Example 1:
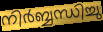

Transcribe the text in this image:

നിർബ്ബന്ധിച്ചു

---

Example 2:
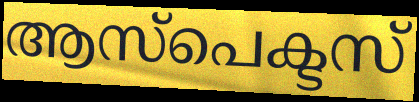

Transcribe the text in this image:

ആസ്പെക്ടസ്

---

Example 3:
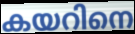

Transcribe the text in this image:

കയറിനെ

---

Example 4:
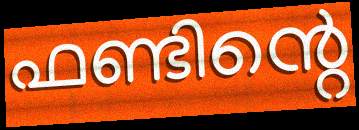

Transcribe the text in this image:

ഫണ്ടിന്റെ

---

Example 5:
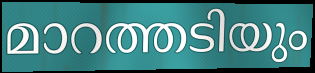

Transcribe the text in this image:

മാറത്തടിയും